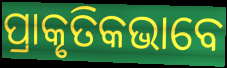
ପ୍ରାକୃତିକଭାବେ